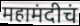
महामंदीचं